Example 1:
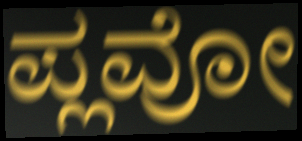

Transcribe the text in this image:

ಪ್ಲವೋ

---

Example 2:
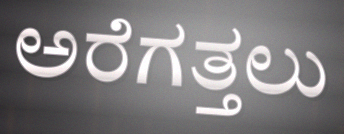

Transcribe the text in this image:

ಅರೆಗತ್ತಲು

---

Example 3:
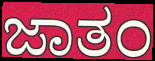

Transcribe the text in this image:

ಜಾತಂ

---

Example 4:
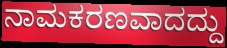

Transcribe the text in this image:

ನಾಮಕರಣವಾದದ್ದು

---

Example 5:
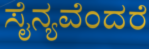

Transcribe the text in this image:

ಸೈನ್ಯವೆಂದರೆ